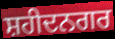
ਸ਼ਹੀਦਨਗਰ